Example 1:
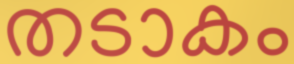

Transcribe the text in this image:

തടാകം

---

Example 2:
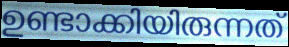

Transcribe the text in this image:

ഉണ്ടാക്കിയിരുന്നത്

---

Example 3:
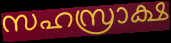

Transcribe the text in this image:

സഹസ്രാക്ഷ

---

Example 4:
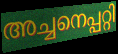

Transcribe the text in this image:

അച്ചനെപ്പറ്റി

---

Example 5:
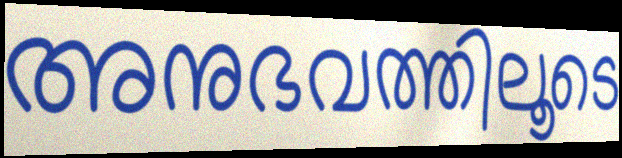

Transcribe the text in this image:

അനുഭവത്തിലൂടെ